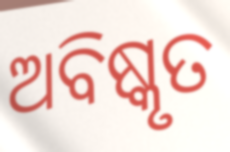
ଅବିଷ୍କୃତ